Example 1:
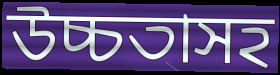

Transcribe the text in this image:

উচ্চতাসহ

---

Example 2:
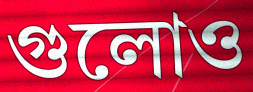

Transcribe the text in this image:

গুলোও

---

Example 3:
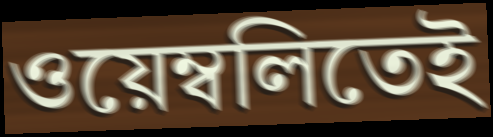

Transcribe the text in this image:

ওয়েম্বলিতেই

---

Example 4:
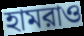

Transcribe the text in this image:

হামরাও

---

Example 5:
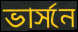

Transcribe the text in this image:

ভার্সনে